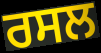
ਰਸਲ